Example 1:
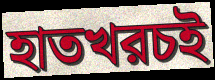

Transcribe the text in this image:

হাতখরচই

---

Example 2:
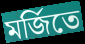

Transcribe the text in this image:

মর্জিতে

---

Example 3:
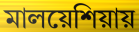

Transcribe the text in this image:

মালয়েশিয়ায়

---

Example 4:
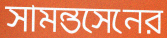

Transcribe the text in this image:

সামন্তসেনের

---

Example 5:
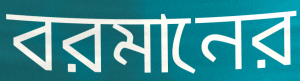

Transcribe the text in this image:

বরমানের